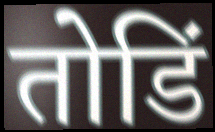
तोडिं